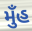
મુઁહ